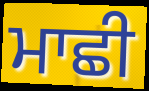
ਮਾਛੀ